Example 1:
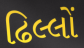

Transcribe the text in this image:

ઢિલ્લોં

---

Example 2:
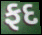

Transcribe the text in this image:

ફદ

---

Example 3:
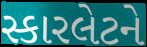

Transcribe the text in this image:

સ્કારલેટને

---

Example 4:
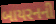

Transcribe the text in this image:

બાયરનની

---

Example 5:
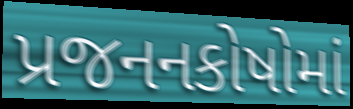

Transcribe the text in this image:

પ્રજનનકોષોમાં